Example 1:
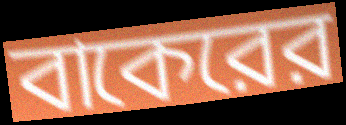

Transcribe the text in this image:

বাকেরের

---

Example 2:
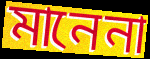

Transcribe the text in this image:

মানেনা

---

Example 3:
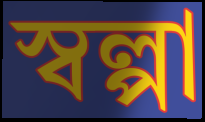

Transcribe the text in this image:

স্বল্পা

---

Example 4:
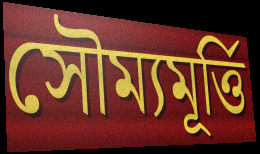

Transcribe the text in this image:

সৌম্যমূর্ত্তি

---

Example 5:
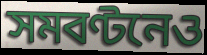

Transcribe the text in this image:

সমবণ্টনেও